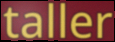
taller